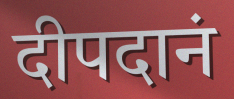
दीपदानं